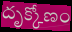
దృక్కోణం